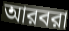
আরবরা